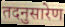
तदनुसारेण